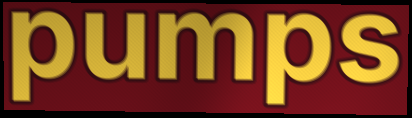
pumps